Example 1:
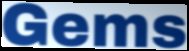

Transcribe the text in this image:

Gems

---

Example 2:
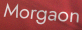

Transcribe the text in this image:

Morgaon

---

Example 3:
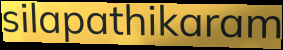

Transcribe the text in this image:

silapathikaram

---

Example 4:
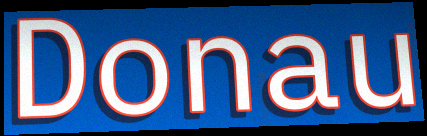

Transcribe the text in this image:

Donau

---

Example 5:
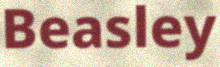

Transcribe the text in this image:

Beasley